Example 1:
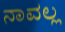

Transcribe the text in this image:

ನಾವಲ್ಲ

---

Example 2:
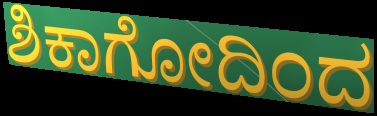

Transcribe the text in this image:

ಶಿಕಾಗೋದಿಂದ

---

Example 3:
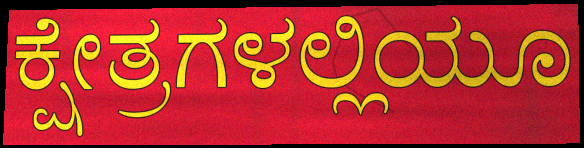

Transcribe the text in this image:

ಕ್ಷೇತ್ರಗಳಲ್ಲಿಯೂ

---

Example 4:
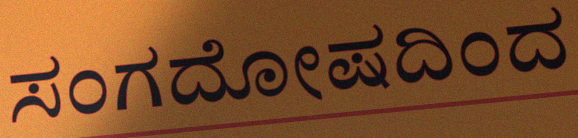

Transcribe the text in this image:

ಸಂಗದೋಷದಿಂದ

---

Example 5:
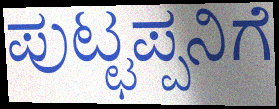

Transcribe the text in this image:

ಪುಟ್ಟಪ್ಪನಿಗೆ